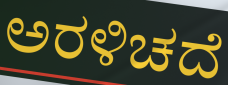
ಅರಳಿಚದೆ